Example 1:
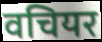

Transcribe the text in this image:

वचियर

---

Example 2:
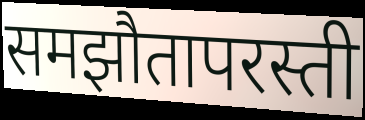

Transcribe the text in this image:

समझौतापरस्ती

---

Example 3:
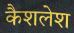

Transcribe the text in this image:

कैशलेश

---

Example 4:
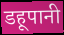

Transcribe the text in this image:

डहूपानी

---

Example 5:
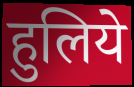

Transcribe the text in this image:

हुलिये